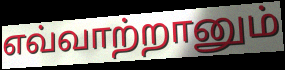
எவ்வாற்றானும்